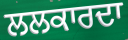
ਲਲਕਾਰਦਾ